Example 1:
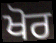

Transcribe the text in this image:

ਖੋਰ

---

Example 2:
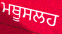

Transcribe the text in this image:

ਮਥੂਸਲਹ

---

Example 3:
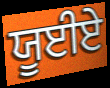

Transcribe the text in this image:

ਯੂਈਏ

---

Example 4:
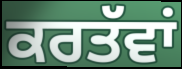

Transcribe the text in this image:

ਕਰਤੱਵਾਂ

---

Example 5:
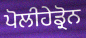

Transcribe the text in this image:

ਪੋਲੀਹੇਡ੍ਰੋਨ